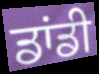
ਡਾਂਡੀ